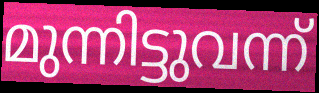
മുന്നിട്ടുവന്ന്